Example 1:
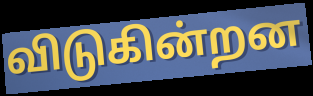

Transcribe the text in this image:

விடுகின்றன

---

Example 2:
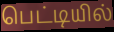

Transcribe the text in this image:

பெட்டியில்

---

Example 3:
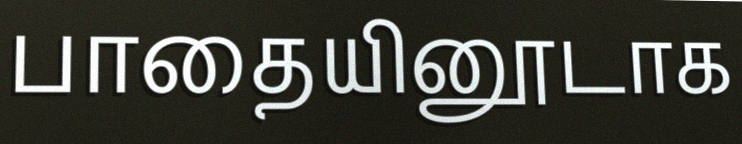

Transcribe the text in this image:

பாதையினூடாக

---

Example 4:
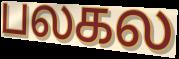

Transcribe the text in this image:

பலகல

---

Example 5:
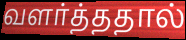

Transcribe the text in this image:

வளர்த்ததால்